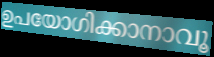
ഉപയോഗിക്കാനാവൂ